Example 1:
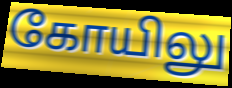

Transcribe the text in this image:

கோயிலு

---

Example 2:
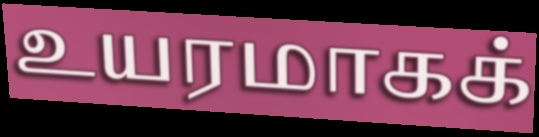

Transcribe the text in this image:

உயரமாகக்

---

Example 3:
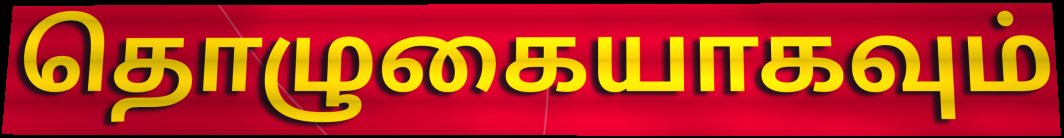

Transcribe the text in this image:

தொழுகையாகவும்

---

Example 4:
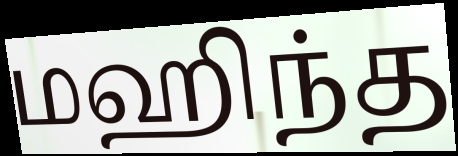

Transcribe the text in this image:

மஹிந்த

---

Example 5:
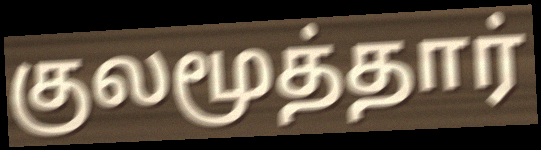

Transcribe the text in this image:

குலமூத்தார்